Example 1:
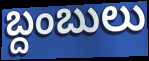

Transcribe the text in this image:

బ్దంబులు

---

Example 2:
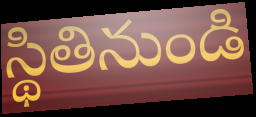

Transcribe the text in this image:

స్థితినుండి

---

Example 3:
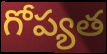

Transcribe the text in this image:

గోప్యత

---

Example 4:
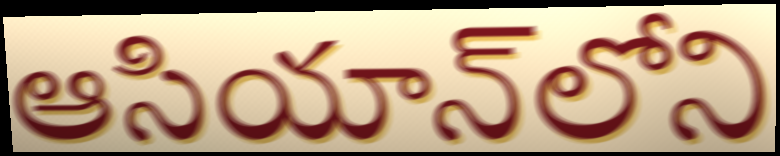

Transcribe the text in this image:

ఆసియాన్‌లోని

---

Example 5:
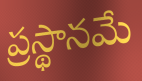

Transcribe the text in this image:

ప్రస్థానమే